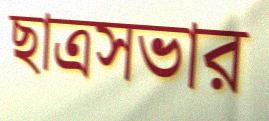
ছাত্রসভার